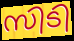
സിടി